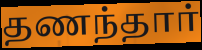
தணந்தார்